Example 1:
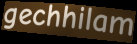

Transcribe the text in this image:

gechhilam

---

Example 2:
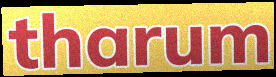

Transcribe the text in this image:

tharum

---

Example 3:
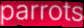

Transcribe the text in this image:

parrots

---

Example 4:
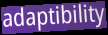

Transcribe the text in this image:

adaptibility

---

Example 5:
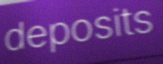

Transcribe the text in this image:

deposits